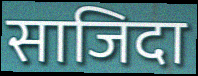
साजिदा